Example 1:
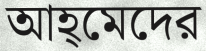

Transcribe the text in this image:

আহ্‌মেদের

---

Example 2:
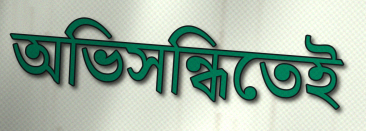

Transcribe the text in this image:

অভিসন্ধিতেই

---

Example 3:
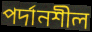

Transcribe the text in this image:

পর্দানশীল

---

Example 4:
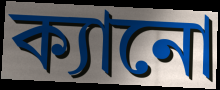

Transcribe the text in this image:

ক্যানো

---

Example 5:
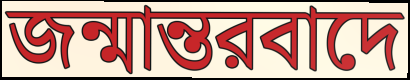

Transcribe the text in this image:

জন্মান্তরবাদে